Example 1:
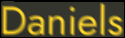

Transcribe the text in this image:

Daniels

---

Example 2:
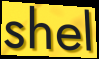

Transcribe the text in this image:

shel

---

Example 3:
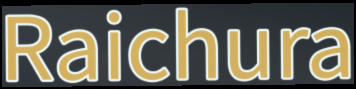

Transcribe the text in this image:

Raichura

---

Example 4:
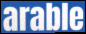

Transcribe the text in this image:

arable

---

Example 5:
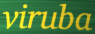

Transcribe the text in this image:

viruba